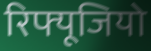
रिफ्यूजियो